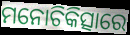
ମନୋଚିକିତ୍ସାରେ